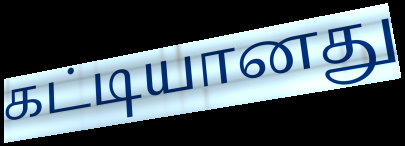
கட்டியானது